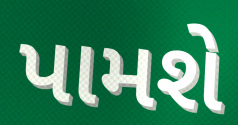
પામશે